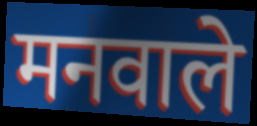
मनवाले